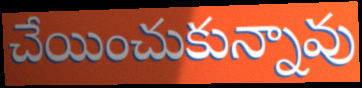
చేయించుకున్నావు